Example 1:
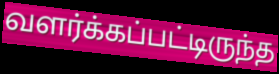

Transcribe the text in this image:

வளர்க்கப்பட்டிருந்த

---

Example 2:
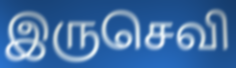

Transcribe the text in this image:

இருசெவி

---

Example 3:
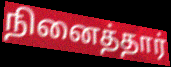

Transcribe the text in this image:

நினைத்தார்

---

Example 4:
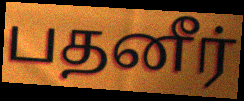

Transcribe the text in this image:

பதனீர்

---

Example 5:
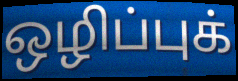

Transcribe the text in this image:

ஒழிப்புக்